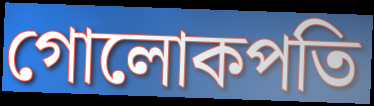
গোলোকপতি